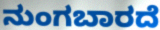
ನುಂಗಬಾರದೆ